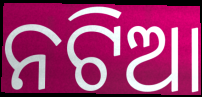
ନଟିଆ